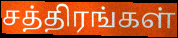
சத்திரங்கள்